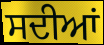
ਸਦੀਆਂ